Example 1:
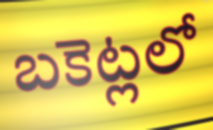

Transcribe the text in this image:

బకెట్లలో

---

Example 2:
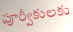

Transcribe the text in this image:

పూర్వీకులకు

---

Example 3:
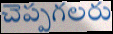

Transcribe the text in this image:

చెప్పగలరు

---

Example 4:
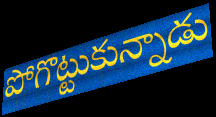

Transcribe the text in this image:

పోగొట్టుకున్నాడు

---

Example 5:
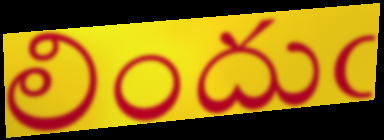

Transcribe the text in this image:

లిందుఁ